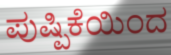
ಪುಷ್ಪಿಕೆಯಿಂದ